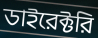
ডাইরেক্টরি